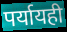
पर्यायही